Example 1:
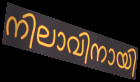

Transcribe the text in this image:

നിലാവിനായി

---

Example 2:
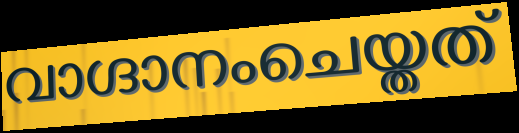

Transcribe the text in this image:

വാഗ്ദാനംചെയ്തത്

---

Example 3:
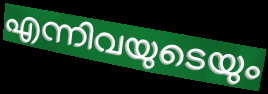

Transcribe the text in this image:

എന്നിവയുടെയും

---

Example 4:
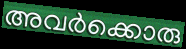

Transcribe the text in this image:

അവർക്കൊരു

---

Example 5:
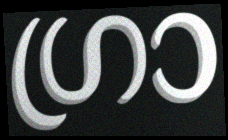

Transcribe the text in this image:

ഗ്രാ